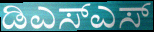
ಡಿಎಸ್ಎಸ್